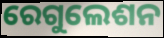
ରେଗୁଲେଶନ